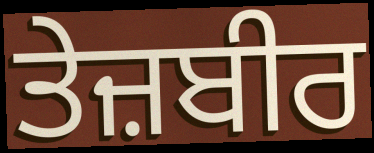
ਤੇਜ਼ਬੀਰ